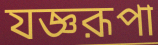
যজ্ঞরূপা